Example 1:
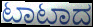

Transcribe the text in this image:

ಟಾಟಾದ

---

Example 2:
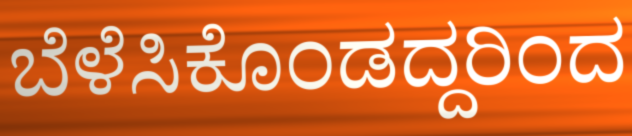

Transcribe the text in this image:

ಬೆಳೆಸಿಕೊಂಡದ್ದರಿಂದ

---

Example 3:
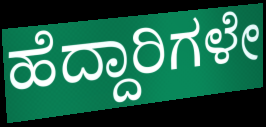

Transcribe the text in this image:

ಹೆದ್ದಾರಿಗಳೇ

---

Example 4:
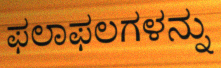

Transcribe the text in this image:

ಫಲಾಫಲಗಳನ್ನು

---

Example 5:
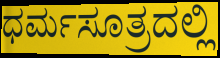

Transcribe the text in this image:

ಧರ್ಮಸೂತ್ರದಲ್ಲಿ